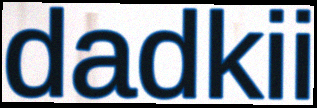
dadkii